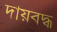
দায়বদ্ধ